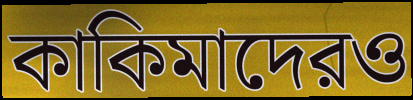
কাকিমাদেরও